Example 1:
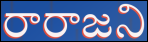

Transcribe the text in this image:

రారాజని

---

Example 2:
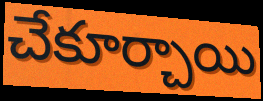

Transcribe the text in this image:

చేకూర్చాయి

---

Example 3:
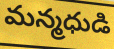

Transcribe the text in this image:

మన్మధుడి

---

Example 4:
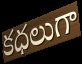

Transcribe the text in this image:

కధలుగా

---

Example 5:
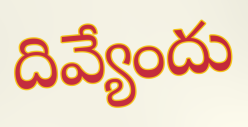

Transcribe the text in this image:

దివ్యేందు